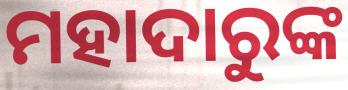
ମହାଦାରୁଙ୍କ